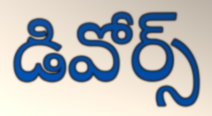
డివోర్స్